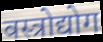
वस्त्रोद्योग